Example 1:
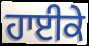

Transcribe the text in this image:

ਹਾਈਕੇ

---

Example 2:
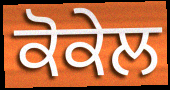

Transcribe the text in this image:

ਕੋਕੇਲ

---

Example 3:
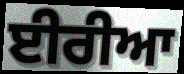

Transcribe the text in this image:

ਈਰੀਆ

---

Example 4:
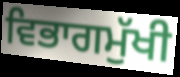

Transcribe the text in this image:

ਵਿਭਾਗਮੁੱਖੀ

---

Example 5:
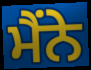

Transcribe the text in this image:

ਮੈਂਨੇ